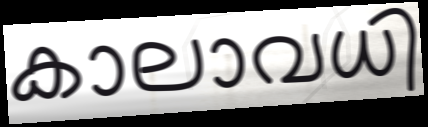
കാലാവധി